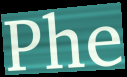
Phe